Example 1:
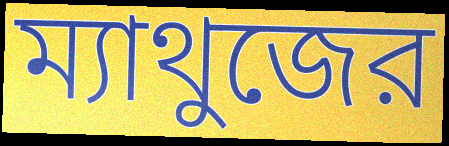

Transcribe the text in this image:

ম্যাথুজের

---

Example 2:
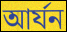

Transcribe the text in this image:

আর্যন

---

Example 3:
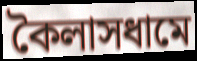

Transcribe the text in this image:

কৈলাসধামে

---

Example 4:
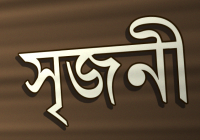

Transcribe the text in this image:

সৃজনী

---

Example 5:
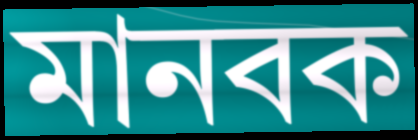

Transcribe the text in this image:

মানবক